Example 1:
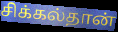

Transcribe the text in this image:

சிக்கல்தான்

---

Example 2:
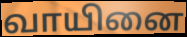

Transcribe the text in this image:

வாயினை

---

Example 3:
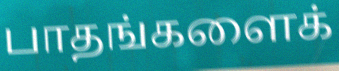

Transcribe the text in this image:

பாதங்களைக்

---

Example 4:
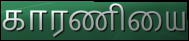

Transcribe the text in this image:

காரணியை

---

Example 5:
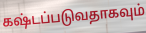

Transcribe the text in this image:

கஷ்டப்படுவதாகவும்